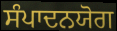
ਸੰਪਾਦਨਯੋਗ